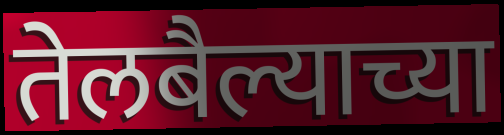
तेलबैल्याच्या